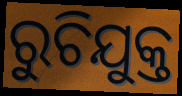
ରୁଚିଯୁକ୍ତ